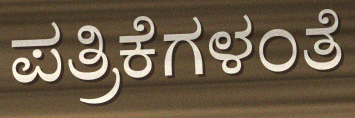
ಪತ್ರಿಕೆಗಳಂತೆ